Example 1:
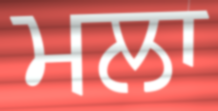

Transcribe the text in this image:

ਮਲਾ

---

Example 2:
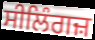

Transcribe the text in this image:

ਸੀਲਿੰਗਜ਼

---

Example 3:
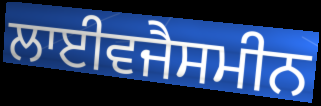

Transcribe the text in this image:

ਲਾਈਵਜੈਸਮੀਨ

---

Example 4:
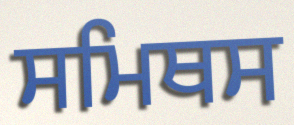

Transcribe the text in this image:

ਸਮਿਥਸ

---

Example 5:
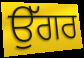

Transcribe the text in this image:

ਉੱਗਰ